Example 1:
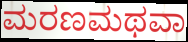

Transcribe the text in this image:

ಮರಣಮಥವಾ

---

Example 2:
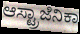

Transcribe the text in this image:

ಆಸ್ಟ್ರಾಜೆನಿಕಾ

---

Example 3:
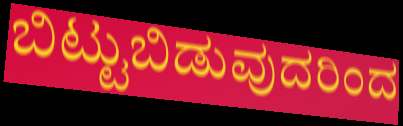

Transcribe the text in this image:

ಬಿಟ್ಟುಬಿಡುವುದರಿಂದ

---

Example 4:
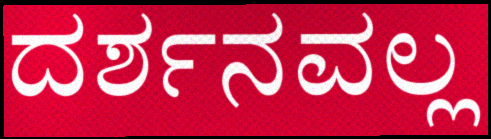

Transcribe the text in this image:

ದರ್ಶನವಲ್ಲ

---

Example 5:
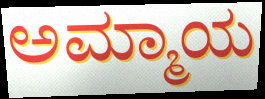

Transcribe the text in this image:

ಅಮ್ಮಾಯ